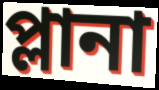
প্লানা